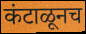
कंटाळूनच